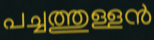
പച്ചത്തുള്ളൻ